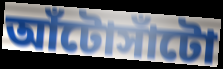
আঁটোসাঁটো